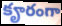
కౄరంగా